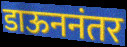
डाऊननंतर